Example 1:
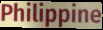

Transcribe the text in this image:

Philippine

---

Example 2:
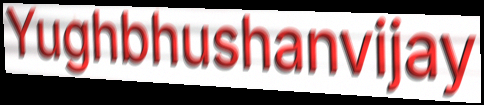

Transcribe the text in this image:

Yughbhushanvijay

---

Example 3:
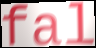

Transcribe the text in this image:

fal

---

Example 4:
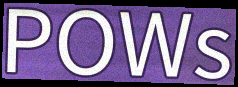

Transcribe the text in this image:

POWs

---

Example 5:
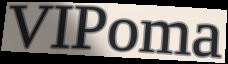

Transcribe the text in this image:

VIPoma